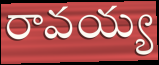
రావయ్య